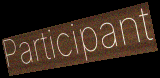
Participant